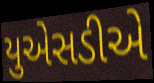
યુએસડીએ